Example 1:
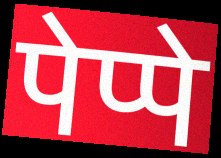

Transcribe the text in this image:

पेप्पे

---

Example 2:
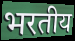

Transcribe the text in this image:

भरतीय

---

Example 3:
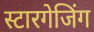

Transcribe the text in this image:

स्टारगेजिंग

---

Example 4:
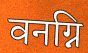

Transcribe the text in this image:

वनग्नि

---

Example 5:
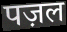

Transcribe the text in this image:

पज़ल